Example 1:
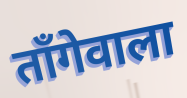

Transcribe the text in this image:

ताँगेवाला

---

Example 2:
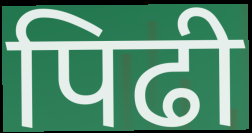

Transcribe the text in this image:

पिढी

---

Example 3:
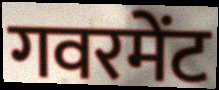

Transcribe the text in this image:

गवरमेंट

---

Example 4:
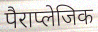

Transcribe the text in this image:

पैराप्लेजिक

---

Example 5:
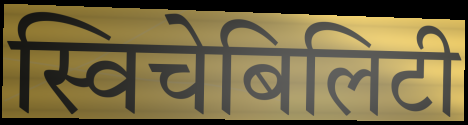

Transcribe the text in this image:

स्विचेबिलिटी